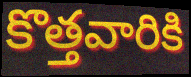
కొత్తవారికి